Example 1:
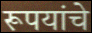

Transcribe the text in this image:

रूपयांचे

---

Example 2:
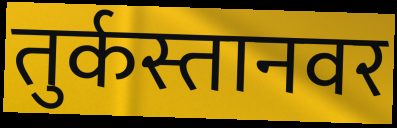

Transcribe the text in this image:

तुर्कस्तानवर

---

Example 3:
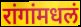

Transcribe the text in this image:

रांगांमधलं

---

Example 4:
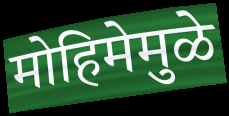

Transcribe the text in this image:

मोहिमेमुळे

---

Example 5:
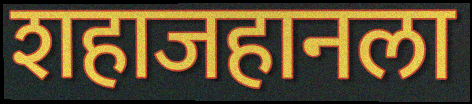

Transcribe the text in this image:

शहाजहानला